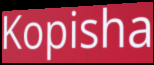
Kopisha